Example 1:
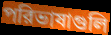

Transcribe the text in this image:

পরিভাষাগুলি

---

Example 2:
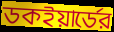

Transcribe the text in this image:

ডকইয়ার্ডের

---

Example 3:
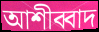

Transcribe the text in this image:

আশীব্বাদ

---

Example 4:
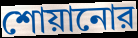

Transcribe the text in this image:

শোয়ানোর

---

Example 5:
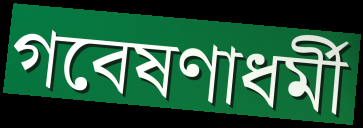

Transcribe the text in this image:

গবেষণাধর্মী